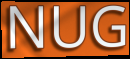
NUG